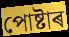
পোষ্টাৰ